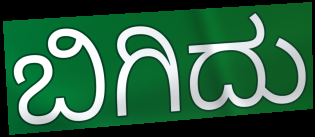
ಬಿಗಿದು